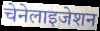
चेनेलाइजेशन